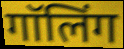
गॉलिंग